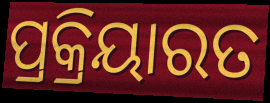
ପ୍ରକ୍ରିୟାରତ